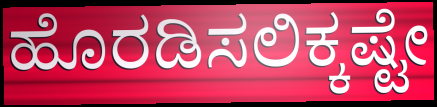
ಹೊರಡಿಸಲಿಕ್ಕಷ್ಟೇ